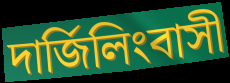
দার্জিলিংবাসী